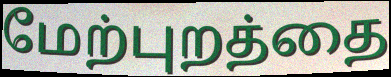
மேற்புறத்தை